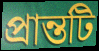
প্রান্তটি